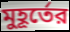
মুহূর্তের